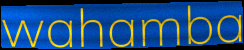
wahamba